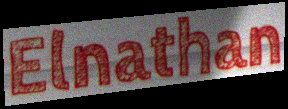
Elnathan